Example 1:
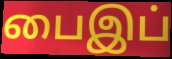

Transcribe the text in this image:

பைஇப்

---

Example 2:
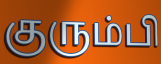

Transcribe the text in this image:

குரும்பி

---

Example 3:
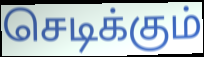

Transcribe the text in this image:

செடிக்கும்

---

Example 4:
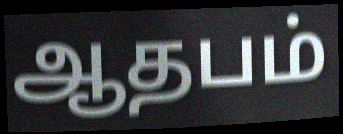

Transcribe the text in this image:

ஆதபம்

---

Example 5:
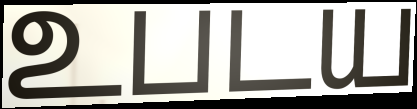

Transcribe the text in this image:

உபடய